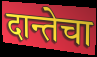
दान्तेचा